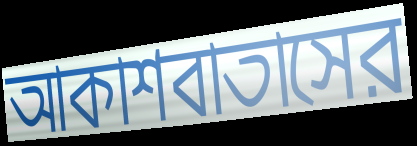
আকাশবাতাসের